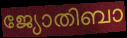
ജ്യോതിബാ